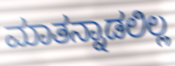
ಮಾತನ್ನಾಡಲಿಲ್ಲ